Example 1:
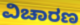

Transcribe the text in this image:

ವಿಚಾರಣ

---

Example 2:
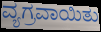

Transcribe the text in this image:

ವ್ಯಗ್ರವಾಯಿತು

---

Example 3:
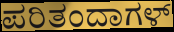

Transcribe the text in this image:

ಪರಿತಂದಾಗಳ್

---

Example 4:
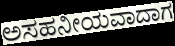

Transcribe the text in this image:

ಅಸಹನೀಯವಾದಾಗ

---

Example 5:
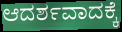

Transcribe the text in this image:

ಆದರ್ಶವಾದಕ್ಕೆ